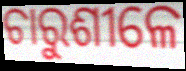
ଚାରୁଶୀଳେ